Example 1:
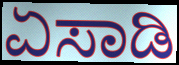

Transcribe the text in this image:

ಏಸಾಡಿ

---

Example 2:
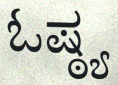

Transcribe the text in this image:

ಓಷ್ಠ್ಯ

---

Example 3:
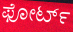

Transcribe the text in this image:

ಫೋರ್ಟ್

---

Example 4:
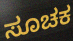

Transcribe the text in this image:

ಸೂಚಕ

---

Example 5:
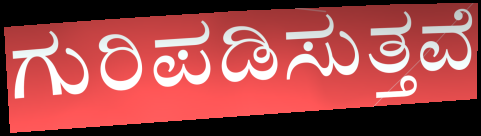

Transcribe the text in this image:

ಗುರಿಪಡಿಸುತ್ತವೆ